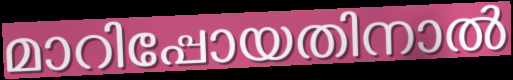
മാറിപ്പോയതിനാൽ